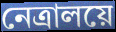
নেত্রালয়ে